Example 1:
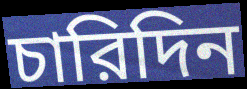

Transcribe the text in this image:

চারিদিন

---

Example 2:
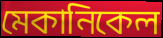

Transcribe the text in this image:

মেকানিকেল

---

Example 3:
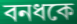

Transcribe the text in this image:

বনধকে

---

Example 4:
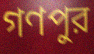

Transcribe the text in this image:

গণপুর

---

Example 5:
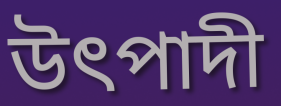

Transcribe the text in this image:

উৎপাদী